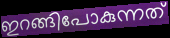
ഇറങ്ങിപോകുന്നത്